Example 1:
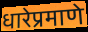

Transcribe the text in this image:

धारेप्रमाणे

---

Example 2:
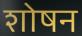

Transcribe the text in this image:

शोषन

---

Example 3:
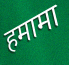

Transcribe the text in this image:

हमामा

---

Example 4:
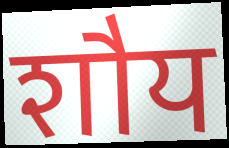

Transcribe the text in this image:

शौय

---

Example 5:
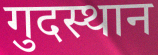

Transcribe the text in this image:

गुदस्थान